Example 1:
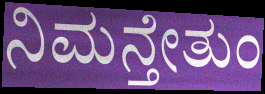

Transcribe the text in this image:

ನಿಮನ್ತೇತುಂ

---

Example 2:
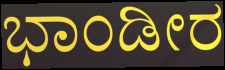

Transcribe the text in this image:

ಭಾಂಡೀರ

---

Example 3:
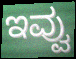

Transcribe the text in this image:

ಇವ್ವು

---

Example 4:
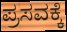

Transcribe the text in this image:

ಪ್ರಸವಕ್ಕೆ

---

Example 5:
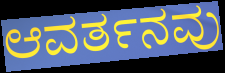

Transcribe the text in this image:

ಆವರ್ತನವು